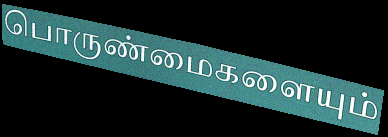
பொருண்மைகளையும்